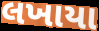
લખાયા